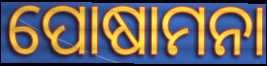
ପୋଷାମନା